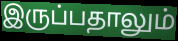
இருப்பதாலும்